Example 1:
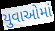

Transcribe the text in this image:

યુવાઓમાં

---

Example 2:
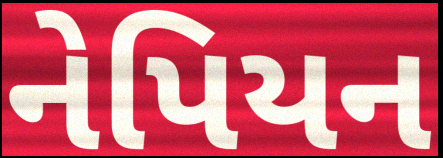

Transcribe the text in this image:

નેપિયન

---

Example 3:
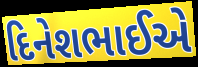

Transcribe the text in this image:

દિનેશભાઈએ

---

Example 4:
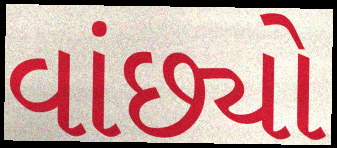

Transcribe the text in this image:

વાંછ્યો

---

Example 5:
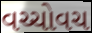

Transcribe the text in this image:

વચ્ચોવચ